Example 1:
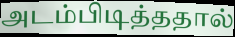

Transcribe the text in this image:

அடம்பிடித்ததால்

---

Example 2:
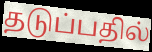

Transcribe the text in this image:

தடுப்பதில்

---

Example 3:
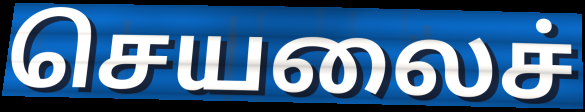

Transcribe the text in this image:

செயலைச்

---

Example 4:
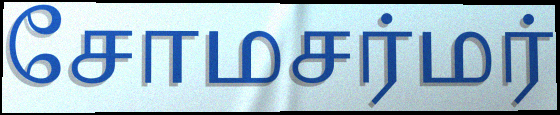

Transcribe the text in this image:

சோமசர்மர்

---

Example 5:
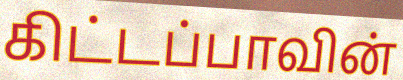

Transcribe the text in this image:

கிட்டப்பாவின்